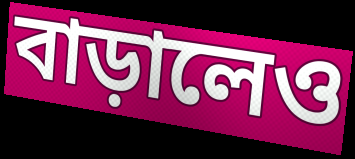
বাড়ালেও